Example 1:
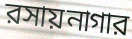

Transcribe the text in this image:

রসায়নাগার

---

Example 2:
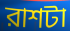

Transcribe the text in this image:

রাশটা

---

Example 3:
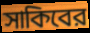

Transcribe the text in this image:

সাকিবের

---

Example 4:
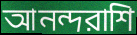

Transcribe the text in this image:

আনন্দরাশি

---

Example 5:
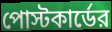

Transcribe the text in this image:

পোস্টকার্ডের